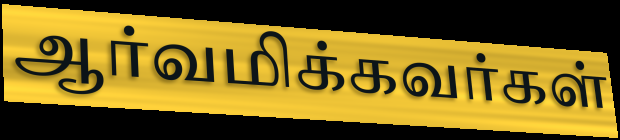
ஆர்வமிக்கவர்கள்